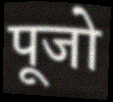
पूजो